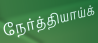
நேர்த்தியாய்க்